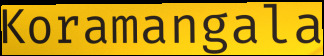
Koramangala